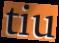
tiu